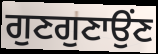
ਗੁਣਗੁਣਾਉਂਣ